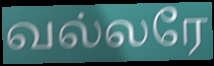
வல்லரே